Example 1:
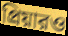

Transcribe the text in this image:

প্রিয়ারও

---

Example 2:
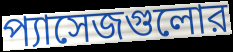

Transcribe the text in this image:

প্যাসেজগুলোর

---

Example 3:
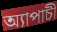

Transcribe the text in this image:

অ্যাপাচী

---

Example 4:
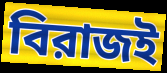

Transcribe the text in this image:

বিরাজই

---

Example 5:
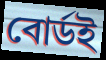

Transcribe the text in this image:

বোর্ডই